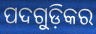
ପଦଗୁଡ଼ିକର